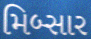
મિબ્સાર